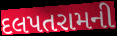
દલપતરામની